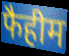
फैहीम